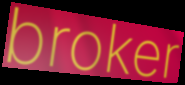
broker